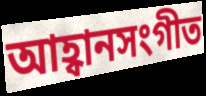
আহ্বানসংগীত